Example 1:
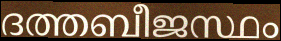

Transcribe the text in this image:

ദത്തബീജസ്ഥം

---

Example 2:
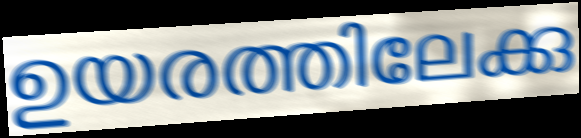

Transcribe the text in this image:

ഉയരത്തിലേക്കു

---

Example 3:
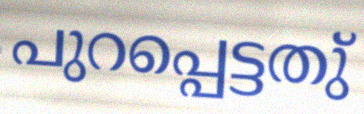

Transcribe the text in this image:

പുറപ്പെട്ടതു്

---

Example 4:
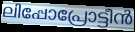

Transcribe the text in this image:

ലിപ്പോപ്രോട്ടീൻ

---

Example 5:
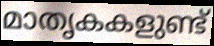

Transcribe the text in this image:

മാതൃകകളുണ്ട്